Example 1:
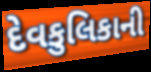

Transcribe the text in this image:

દેવકુલિકાની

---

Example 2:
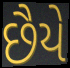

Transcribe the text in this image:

છૈયે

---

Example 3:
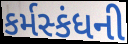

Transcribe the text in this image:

કર્મસ્કંધની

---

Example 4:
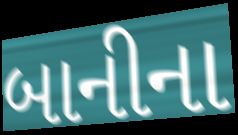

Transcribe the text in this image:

બાનીના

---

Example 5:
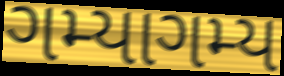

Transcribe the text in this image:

ગમ્યાગમ્ય